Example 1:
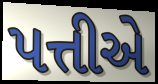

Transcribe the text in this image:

પત્તીએ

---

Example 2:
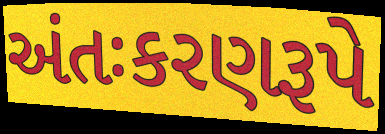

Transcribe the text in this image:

અંતઃકરણરૂપે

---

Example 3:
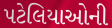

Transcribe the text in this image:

પટેલિયાઓની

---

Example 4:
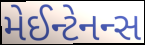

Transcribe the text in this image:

મેઈન્ટેનન્સ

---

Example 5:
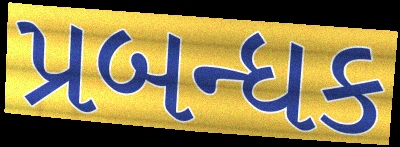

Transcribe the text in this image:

પ્રબન્ધક